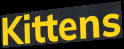
Kittens